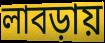
লাবড়ায়